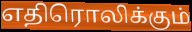
எதிரொலிக்கும்